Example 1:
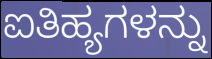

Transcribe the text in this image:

ಐತಿಹ್ಯಗಳನ್ನು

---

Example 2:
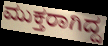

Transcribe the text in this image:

ಮುಕ್ತರಾಗಿದ್ದ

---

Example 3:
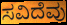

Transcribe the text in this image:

ಸವಿದೆವು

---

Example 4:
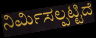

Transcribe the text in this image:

ನಿರ್ಮಿಸಲ್ಪಟ್ಟಿದೆ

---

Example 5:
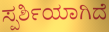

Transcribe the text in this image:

ಸ್ಪರ್ಶಿಯಾಗಿದೆ